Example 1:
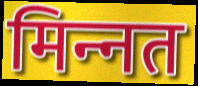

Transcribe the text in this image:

मिन्नत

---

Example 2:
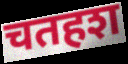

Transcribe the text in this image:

चतहश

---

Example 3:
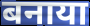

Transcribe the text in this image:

बनाया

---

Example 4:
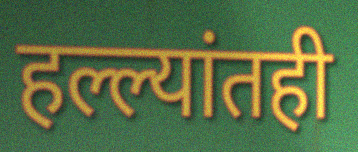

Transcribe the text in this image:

हल्ल्यांतही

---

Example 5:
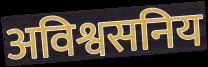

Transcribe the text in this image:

अविश्वसनिय